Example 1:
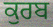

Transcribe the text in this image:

ਕੁਰਬ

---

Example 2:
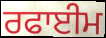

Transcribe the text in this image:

ਰਫਾਈਮ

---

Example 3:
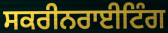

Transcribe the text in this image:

ਸਕਰੀਨਰਾਈਟਿੰਗ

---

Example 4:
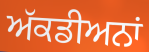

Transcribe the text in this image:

ਅੱਕਡੀਅਨਾਂ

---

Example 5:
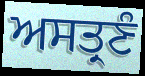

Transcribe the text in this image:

ਅਸਤ੍ਰਣੰ